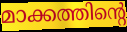
മാക്കത്തിന്റെ